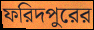
ফরিদপুরের